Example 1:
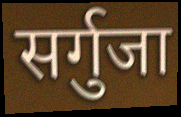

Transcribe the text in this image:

सर्गुजा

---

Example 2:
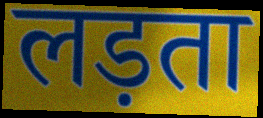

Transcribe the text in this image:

लड़ता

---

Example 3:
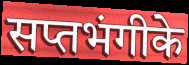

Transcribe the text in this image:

सप्तभंगीके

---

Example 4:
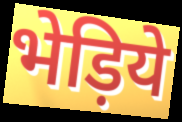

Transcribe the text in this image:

भेड़िये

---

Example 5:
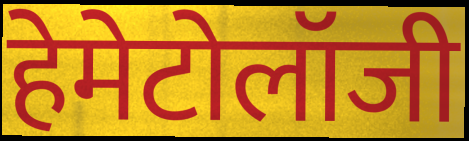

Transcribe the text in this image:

हेमेटोलॉजी